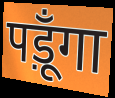
पड़ूँगा